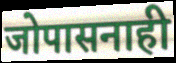
जोपासनाही